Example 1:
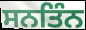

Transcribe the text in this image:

ਸਨਤਿੰਨ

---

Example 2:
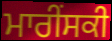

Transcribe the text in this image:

ਮਾਰੀੰਸਕੀ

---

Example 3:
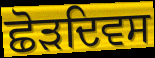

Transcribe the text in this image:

ਛੋੜਦਿਵਸ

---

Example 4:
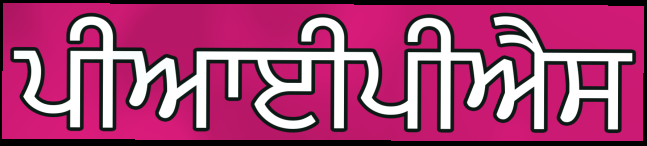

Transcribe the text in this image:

ਪੀਆਈਪੀਐਸ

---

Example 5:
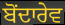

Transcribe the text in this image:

ਬੋਂਦਾਰੇਵ